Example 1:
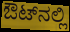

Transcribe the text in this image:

ಔಟ್‌ನಲ್ಲಿ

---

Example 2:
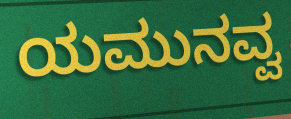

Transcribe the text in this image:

ಯಮುನವ್ವ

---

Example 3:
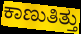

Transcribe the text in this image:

ಕಾಣುತಿತ್ತು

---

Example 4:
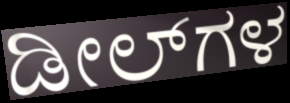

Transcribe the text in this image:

ಡೀಲ್‌ಗಳ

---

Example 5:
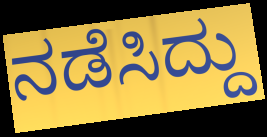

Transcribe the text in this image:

ನಡೆಸಿದ್ದು